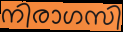
നിരാഗസി